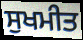
ਸੁਖਮੀਤ